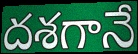
దశగానే